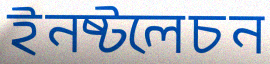
ইনষ্টলেচন